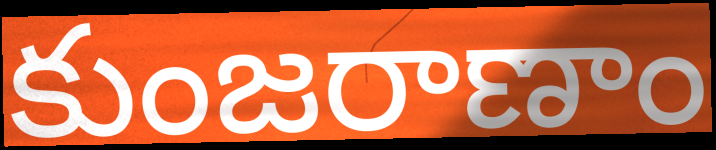
కుంజరాణాం